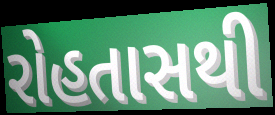
રોહતાસથી